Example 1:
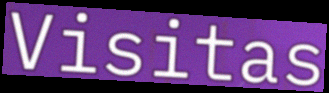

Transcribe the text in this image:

Visitas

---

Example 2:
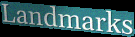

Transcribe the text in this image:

Landmarks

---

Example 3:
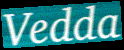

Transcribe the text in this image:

Vedda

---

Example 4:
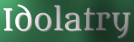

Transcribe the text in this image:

Idolatry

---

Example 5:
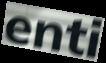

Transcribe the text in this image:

enti